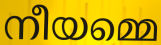
നീയമ്മെ